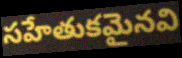
సహేతుకమైనవి